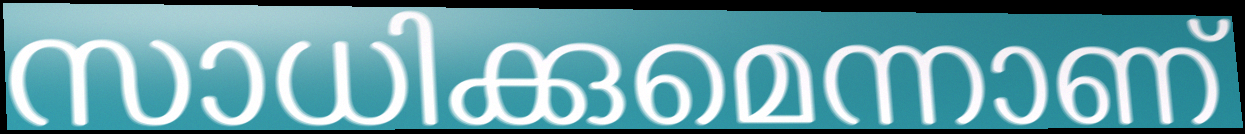
സാധിക്കുമെന്നാണ്